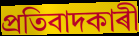
প্ৰতিবাদকাৰী